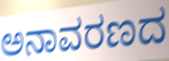
ಅನಾವರಣದ